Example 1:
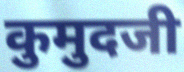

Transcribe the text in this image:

कुमुदजी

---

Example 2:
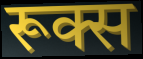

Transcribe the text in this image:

रूक्स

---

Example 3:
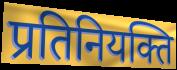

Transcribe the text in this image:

प्रतिनियक्ति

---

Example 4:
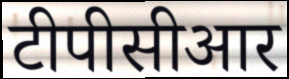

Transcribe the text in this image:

टीपीसीआर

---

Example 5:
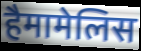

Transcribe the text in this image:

हैमामेलिस